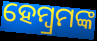
ହେମ୍ବ୍ରମଙ୍କ